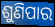
ଶୁଣିପାର